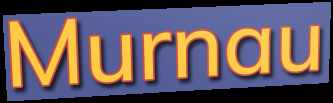
Murnau